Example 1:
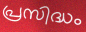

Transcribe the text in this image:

പ്രസിദ്ധം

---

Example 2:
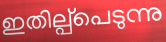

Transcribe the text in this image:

ഇതില്പ്പെടുന്നു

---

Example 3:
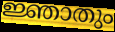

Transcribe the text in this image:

ജ്ഞാതും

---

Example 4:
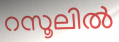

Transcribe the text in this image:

റസൂലിൽ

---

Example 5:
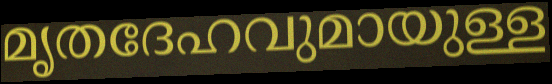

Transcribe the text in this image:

മൃതദേഹവുമായുള്ള